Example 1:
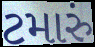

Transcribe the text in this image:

ટમારું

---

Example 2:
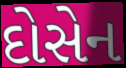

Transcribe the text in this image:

દોસેન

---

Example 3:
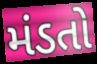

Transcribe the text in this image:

મંડતો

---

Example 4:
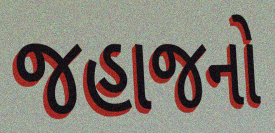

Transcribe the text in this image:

જહાજનો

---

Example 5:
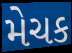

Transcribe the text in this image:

મેચક